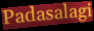
Padasalagi